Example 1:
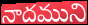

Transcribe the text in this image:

నాదముని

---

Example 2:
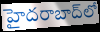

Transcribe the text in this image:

హైదరాబాద్‌లో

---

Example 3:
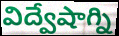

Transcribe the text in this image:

విద్వేషాగ్ని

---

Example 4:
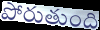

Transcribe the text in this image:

పోరుతుంది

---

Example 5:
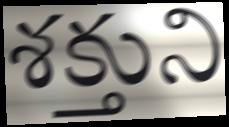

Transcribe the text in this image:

శక్తుని